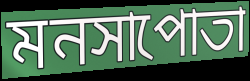
মনসাপোতা